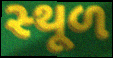
સ્‍થૂળ